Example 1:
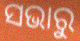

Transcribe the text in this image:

ସଭାରୁ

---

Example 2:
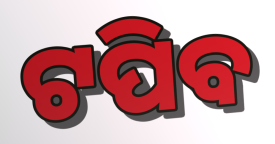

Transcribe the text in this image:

ଟପିବ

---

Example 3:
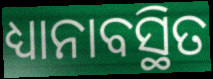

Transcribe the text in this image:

ଧ୍ୟାନାବସ୍ଥିତ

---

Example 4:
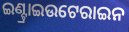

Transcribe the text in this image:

ଇଣ୍ଟ୍ରାଇଉଟେରାଇନ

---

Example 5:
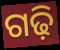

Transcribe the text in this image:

ଗଢ଼ି